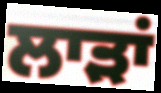
ਲਾੜਾਂ